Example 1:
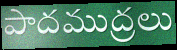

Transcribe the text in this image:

పాదముద్రలు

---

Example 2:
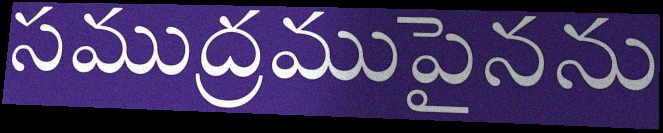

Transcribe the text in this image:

సముద్రముపైనను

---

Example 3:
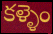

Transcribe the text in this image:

కళ్ళెం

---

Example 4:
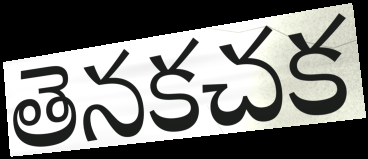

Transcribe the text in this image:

తెనకచక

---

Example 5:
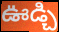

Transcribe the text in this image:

ఊడ్చి